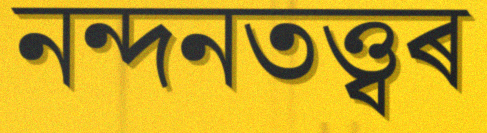
নন্দনতত্ত্বৰ